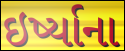
ઇર્ષ્યાના